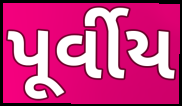
પૂર્વીય